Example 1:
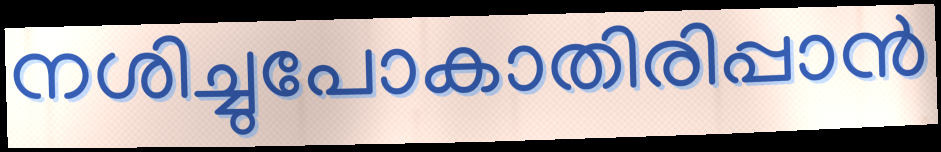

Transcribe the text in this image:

നശിച്ചുപോകാതിരിപ്പാൻ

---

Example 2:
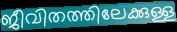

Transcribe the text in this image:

ജീവിതത്തിലേക്കുള്ള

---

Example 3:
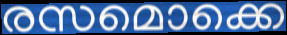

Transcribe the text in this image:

രസമൊക്കെ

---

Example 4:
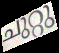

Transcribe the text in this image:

ചുറ്റു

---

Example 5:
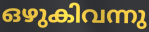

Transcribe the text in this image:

ഒഴുകിവന്നു